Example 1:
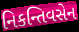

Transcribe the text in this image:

નિકન્તિવસેન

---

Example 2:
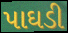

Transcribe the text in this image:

પાઘડી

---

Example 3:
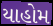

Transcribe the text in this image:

યાહોમ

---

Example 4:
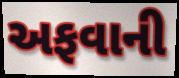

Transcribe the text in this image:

અફવાની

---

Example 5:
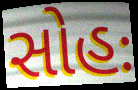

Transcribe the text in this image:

સોહઃ